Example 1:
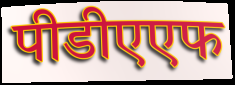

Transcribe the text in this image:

पीडीएएफ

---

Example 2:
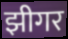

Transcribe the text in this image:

झीगर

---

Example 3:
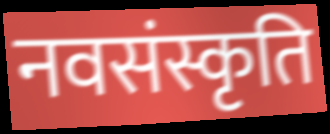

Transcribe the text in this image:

नवसंस्कृति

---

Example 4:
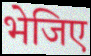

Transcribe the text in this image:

भेजिए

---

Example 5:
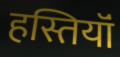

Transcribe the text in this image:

हस्तियॉं